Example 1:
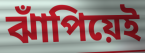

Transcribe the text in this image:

ঝাঁপিয়েই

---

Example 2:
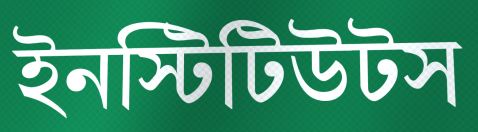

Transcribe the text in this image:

ইনস্টিটিউটস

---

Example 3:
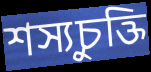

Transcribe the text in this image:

শস্যচুক্তি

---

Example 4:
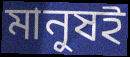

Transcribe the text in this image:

মানুষই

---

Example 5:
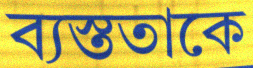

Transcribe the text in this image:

ব্যস্ততাকে